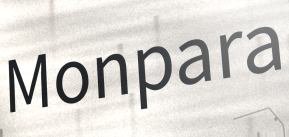
Monpara